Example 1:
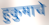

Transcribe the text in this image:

हुकुमाचे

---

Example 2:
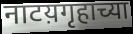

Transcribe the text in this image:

नाटय़गृहाच्या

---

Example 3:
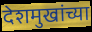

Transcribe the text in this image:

देशमुखांच्या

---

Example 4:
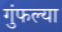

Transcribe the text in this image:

गुंफल्या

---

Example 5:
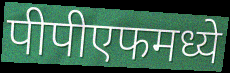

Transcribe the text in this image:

पीपीएफमध्ये